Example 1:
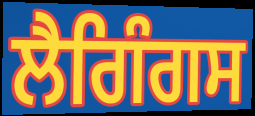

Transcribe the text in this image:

ਲੈਗਿੰਗਸ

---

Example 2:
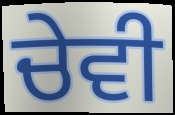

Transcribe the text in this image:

ਚੇਵੀ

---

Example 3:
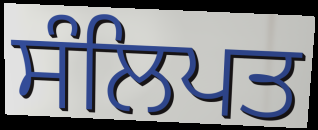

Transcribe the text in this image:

ਸੰਲਿਪਤ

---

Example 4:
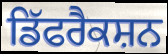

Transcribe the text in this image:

ਡਿੱਫਰੈਕਸ਼ਨ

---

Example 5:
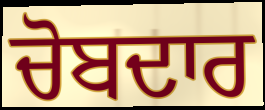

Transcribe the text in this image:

ਚੋਬਦਾਰ